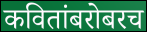
कवितांबरोबरच